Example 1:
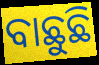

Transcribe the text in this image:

ବାଛୁଛି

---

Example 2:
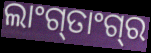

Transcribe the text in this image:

ଲାଂଗ୍‍ତାଂଗ୍‍ର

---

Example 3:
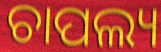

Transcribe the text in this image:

ଚାପଲ୍ୟ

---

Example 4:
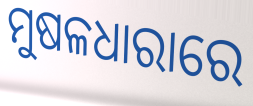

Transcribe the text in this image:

ମୁଷଳଧାରାରେ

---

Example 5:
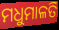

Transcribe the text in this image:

ମଧୁମାଳତି